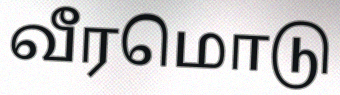
வீரமொடு